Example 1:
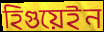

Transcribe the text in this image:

হিগুয়েইন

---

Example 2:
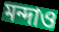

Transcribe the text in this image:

মন্দাও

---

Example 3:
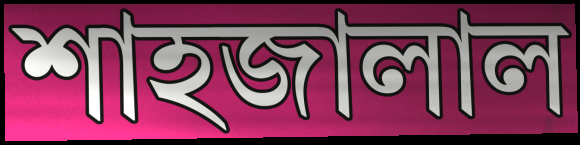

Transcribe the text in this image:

শাহজালাল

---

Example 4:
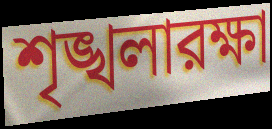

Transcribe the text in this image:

শৃঙ্খলারক্ষা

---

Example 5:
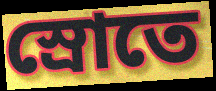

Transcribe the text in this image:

স্রোতে